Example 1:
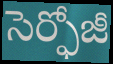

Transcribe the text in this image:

సెర్ఫోజీ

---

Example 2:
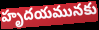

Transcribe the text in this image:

హృదయమునకు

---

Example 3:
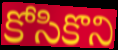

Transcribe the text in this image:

కోసికొని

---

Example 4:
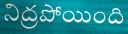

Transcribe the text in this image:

నిద్రపోయింది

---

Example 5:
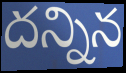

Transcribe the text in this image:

దన్నిన